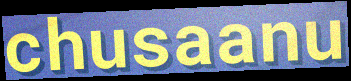
chusaanu